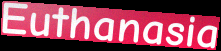
Euthanasia